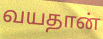
வயதான்